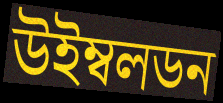
উইম্বলডন